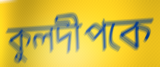
কুলদীপকে